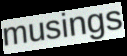
musings